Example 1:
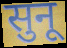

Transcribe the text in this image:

सुनू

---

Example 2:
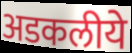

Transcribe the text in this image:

अडकलीये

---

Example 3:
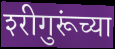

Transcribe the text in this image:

श्रीगुरूंच्या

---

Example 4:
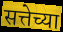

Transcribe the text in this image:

सत्तेच्या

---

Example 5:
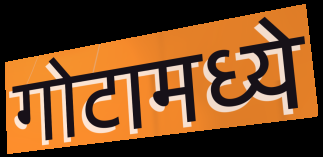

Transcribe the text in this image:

गोटामध्ये